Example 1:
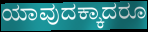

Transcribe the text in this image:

ಯಾವುದಕ್ಕಾದರೂ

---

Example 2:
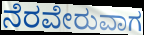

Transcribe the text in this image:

ನೆರವೇರುವಾಗ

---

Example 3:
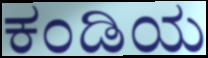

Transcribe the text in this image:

ಕಂಡಿಯ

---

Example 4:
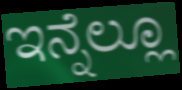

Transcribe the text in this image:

ಇನ್ನೆಲ್ಲೂ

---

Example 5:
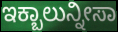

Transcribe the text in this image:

ಇಕ್ಬಾಲುನ್ನೀಸಾ